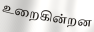
உறைகின்றன